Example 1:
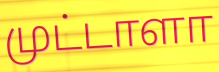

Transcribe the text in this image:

முட்டாளா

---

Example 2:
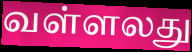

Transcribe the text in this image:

வள்ளலது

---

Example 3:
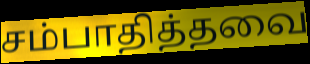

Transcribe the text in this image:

சம்பாதித்தவை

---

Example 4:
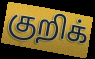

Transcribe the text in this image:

குறிக்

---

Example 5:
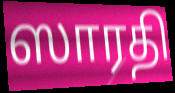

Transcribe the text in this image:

ஸாரதி